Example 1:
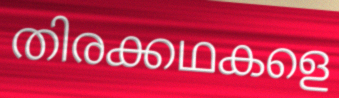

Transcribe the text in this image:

തിരക്കഥകളെ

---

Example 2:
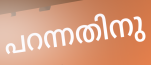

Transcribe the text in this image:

പറന്നതിനു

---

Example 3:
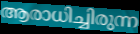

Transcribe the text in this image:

ആരാധിച്ചിരുന്ന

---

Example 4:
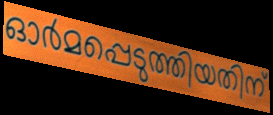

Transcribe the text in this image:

ഓർമപ്പെടുത്തിയതിന്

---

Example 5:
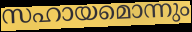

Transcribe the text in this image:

സഹായമൊന്നും